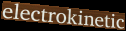
electrokinetic